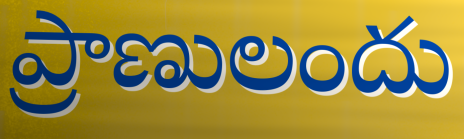
ప్రాణులందు